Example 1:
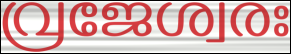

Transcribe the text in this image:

വ്രജേശ്വരഃ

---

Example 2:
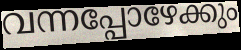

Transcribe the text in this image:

വന്നപ്പോഴേക്കും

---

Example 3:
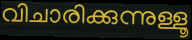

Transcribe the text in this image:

വിചാരിക്കുന്നുള്ളൂ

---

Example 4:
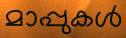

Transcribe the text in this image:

മാപ്പുകൾ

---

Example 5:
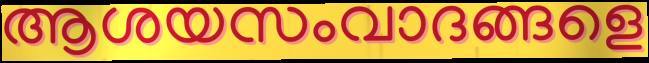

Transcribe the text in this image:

ആശയസംവാദങ്ങളെ